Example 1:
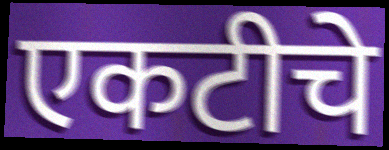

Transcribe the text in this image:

एकटीचे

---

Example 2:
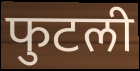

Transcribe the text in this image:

फुटली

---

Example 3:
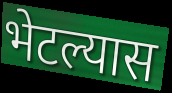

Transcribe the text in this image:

भेटल्यास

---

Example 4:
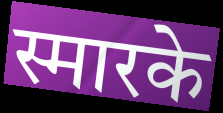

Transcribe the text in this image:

स्मारके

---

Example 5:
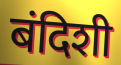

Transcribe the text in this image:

बंदिशी